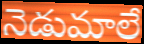
నెడుమాలే